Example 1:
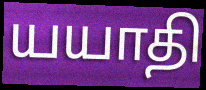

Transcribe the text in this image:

யயாதி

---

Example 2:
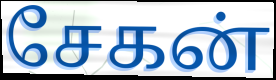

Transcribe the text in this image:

சேகன்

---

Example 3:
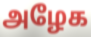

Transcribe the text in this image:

அழேக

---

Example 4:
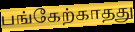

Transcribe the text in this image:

பங்கேற்காதது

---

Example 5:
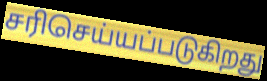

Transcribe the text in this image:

சரிசெய்யப்படுகிறது